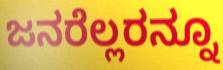
ಜನರೆಲ್ಲರನ್ನೂ